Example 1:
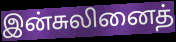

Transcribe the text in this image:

இன்சுலினைத்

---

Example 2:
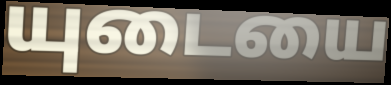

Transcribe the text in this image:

யுடையை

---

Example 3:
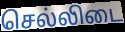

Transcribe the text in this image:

செல்லிடை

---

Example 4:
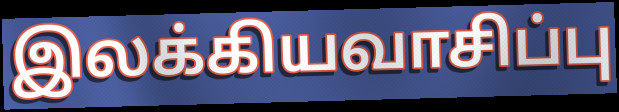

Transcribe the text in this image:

இலக்கியவாசிப்பு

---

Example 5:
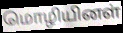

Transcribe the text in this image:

மொழியினள்